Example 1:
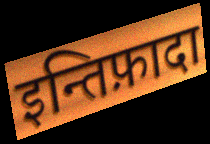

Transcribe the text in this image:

इन्तिफ़ादा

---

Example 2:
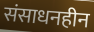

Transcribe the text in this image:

संसाधनहीन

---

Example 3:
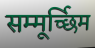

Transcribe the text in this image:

सम्मूर्च्छिम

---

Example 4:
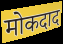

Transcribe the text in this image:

मोकदाद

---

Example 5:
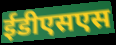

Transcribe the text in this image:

ईडीएसएस